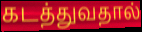
கடத்துவதால்